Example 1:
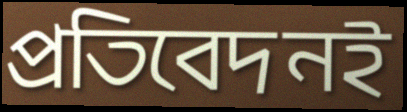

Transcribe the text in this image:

প্রতিবেদনই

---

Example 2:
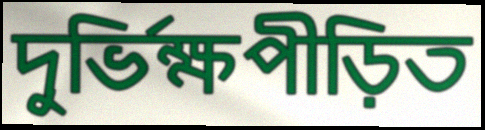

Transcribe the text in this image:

দুর্ভিক্ষপীড়িত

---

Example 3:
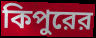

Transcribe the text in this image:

কিপুরের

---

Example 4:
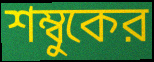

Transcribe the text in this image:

শম্বুকের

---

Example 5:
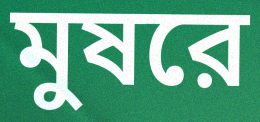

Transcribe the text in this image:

মুষরে